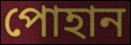
পোহান